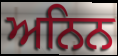
ਅਨਿਨ